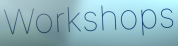
Workshops